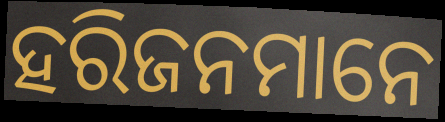
ହରିଜନମାନେ